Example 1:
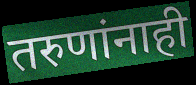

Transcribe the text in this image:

तरुणांनाही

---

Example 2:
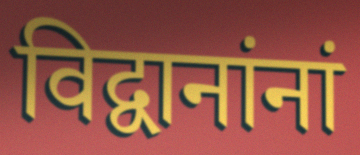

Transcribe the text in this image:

विद्वानांनां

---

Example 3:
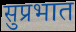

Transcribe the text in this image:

सुप्रभात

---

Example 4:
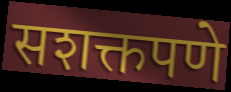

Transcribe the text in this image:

सशक्तपणे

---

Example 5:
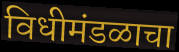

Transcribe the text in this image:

विधीमंडळाचा